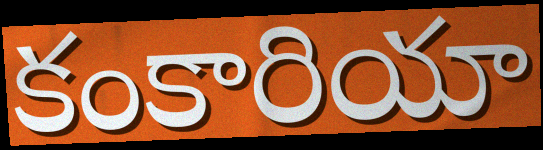
కంకారియా